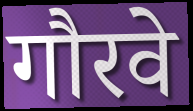
गौरवे